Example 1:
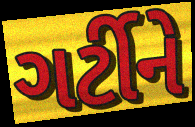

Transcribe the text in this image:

ગર્ટીને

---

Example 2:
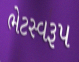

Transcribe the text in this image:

ભેટસ્વરૂપ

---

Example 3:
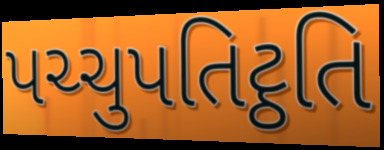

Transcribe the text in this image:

પચ્ચુપતિટ્ઠતિ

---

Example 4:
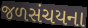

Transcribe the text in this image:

જળસંચયના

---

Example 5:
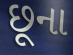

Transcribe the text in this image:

છૂના